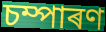
চম্পাৰণ